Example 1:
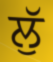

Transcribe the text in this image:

ਲੁੱ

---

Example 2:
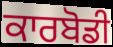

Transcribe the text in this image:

ਕਾਰਬੋਡੀ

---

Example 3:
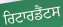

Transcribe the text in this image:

ਰਿਟਾਰਡੈਂਟਸ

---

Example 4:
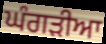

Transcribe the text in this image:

ਘੰਗੜੀਆ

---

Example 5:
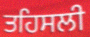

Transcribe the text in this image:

ਤਹਿਸਲੀ